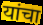
यांचा